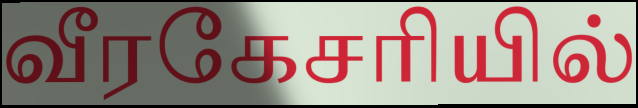
வீரகேசரியில்